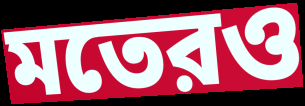
মতেরও